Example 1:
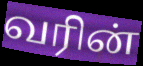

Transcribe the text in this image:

வரின்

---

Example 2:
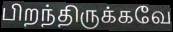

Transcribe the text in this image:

பிறந்திருக்கவே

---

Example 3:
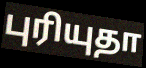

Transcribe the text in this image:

புரியுதா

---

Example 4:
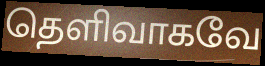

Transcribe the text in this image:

தெளிவாகவே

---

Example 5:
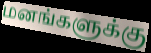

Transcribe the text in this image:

மனங்களுக்கு